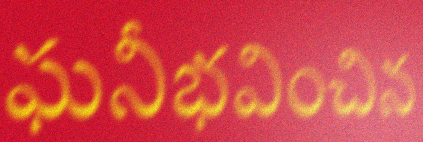
ఘనీభవించిన